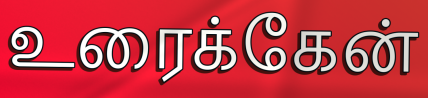
உரைக்கேன்